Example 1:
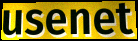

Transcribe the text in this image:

usenet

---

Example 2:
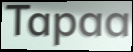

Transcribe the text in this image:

Tapaa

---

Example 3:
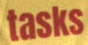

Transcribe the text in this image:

tasks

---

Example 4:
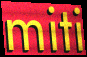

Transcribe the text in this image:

miti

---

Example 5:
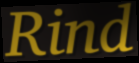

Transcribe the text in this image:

Rind